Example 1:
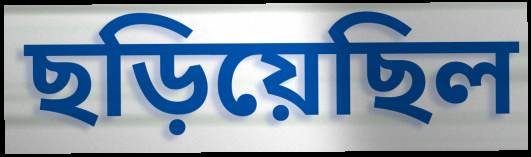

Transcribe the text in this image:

ছড়িয়েছিল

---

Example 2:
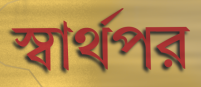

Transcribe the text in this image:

স্বার্থপর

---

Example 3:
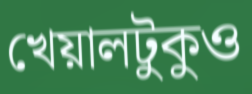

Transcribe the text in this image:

খেয়ালটুকুও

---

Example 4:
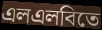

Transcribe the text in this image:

এলএলবিতে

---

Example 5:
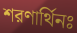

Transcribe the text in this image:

শরণার্থিনঃ